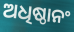
ଅଧିଷ୍ଠାନଂ